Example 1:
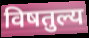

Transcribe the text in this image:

विषतुल्य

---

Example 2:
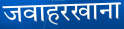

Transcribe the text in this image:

जवाहरखाना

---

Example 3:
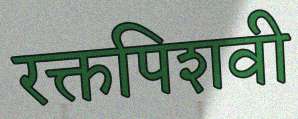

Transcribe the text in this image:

रक्तपिशवी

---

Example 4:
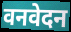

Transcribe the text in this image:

वनवेदन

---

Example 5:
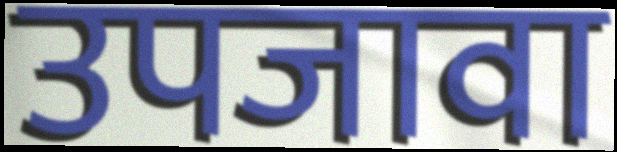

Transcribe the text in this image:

उपजावा